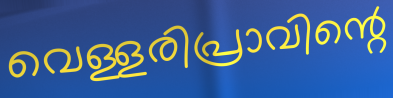
വെള്ളരിപ്രാവിന്റെ